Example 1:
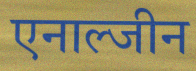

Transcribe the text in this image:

एनाल्जीन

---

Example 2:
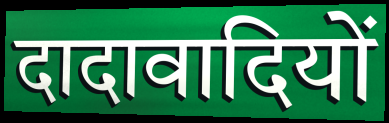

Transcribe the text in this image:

दादावादियों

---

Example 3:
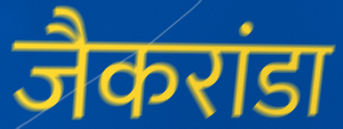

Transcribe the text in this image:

जैकरांडा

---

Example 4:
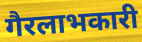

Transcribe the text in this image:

गैरलाभकारी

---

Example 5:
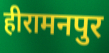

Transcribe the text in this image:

हीरामनपुर